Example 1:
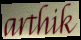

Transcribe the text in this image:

arthik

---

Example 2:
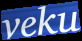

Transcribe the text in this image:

veku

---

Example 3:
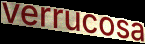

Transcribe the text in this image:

verrucosa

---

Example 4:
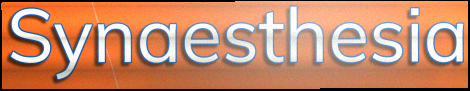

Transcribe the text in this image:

Synaesthesia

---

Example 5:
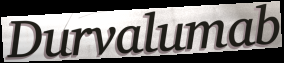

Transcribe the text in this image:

Durvalumab